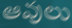
ఆవులు